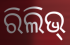
ରିଲିଭ୍